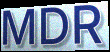
MDR